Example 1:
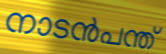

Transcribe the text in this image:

നാടൻപന്ത്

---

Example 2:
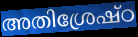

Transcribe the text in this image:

അതിശ്രേഷ്ഠ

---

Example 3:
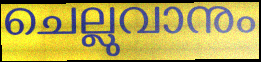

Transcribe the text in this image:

ചെല്ലുവാനും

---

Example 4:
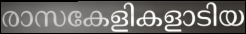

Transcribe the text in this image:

രാസകേളികളാടിയ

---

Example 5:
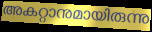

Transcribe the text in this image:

അകറ്റാനുമായിരുന്നു